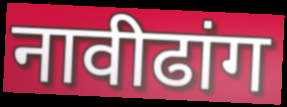
नावीढांग